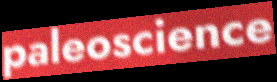
paleoscience